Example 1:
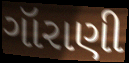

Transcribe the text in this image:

ગૉરાણી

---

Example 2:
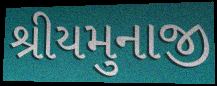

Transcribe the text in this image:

શ્રીયમુનાજી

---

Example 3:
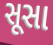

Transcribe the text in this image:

સૂસા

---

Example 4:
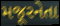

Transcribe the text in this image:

મજૂરનેતા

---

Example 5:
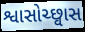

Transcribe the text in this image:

શ્વાસોચ્છ્વાસ